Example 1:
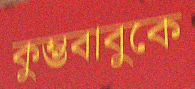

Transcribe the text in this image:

কুম্ভবাবুকে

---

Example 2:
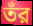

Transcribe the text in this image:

তঁর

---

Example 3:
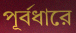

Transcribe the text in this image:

পূর্বধারে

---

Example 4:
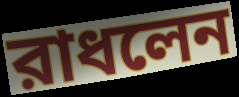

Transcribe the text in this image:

রাধলেন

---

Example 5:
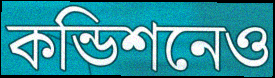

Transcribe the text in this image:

কন্ডিশনেও